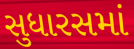
સુધારસમાં